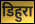
डिहुरा